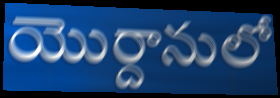
యొర్దానులో